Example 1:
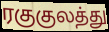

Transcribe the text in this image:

ரகுகுலத்து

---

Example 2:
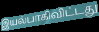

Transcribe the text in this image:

இயல்பாகிவிட்டது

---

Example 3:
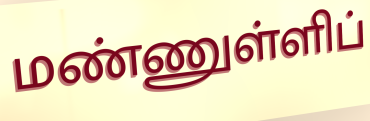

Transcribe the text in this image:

மண்ணுள்ளிப்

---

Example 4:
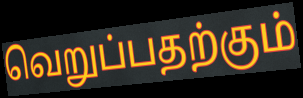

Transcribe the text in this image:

வெறுப்பதற்கும்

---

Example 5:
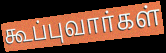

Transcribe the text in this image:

கூப்புவார்கள்